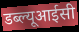
डब्ल्यूआईसी